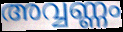
അവ്വണ്ണം